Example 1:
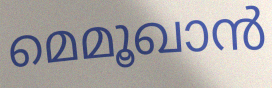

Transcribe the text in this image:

മെമൂഖാൻ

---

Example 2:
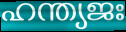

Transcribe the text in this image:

ഹന്ത്യജഃ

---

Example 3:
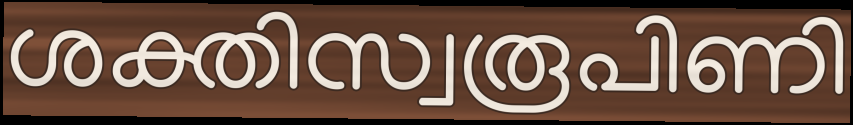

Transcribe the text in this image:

ശക്തിസ്വരൂപിണി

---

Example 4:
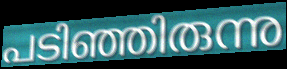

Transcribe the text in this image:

പടിഞ്ഞിരുന്നു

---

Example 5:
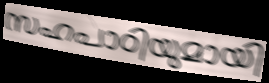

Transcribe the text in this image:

സഹപാഠിയുമായി